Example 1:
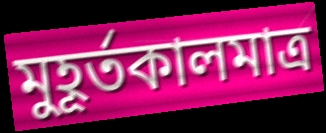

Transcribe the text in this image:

মুহূর্তকালমাত্র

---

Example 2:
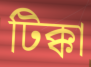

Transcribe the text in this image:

টিক্কা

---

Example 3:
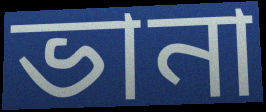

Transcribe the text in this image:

ভানা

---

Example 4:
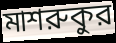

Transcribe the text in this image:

মাশরুকুর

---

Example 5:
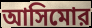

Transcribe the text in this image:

আসিমোর